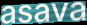
asava